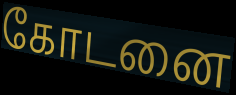
கோடனை